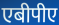
एबीपीए